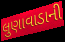
લુણાવાડાની